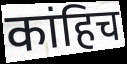
कांहिच